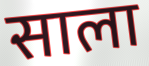
साला